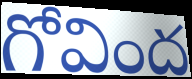
గోవింద